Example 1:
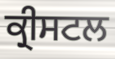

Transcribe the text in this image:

ਕ੍ਰੀਸਟਲ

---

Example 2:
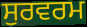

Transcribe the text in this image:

ਸੁਰਵਰਮ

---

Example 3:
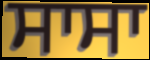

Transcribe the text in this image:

ਸਾਸਾ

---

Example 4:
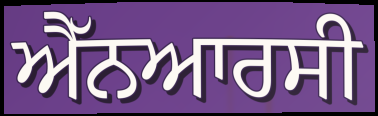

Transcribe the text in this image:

ਐੱਨਆਰਸੀ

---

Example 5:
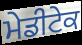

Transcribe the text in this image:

ਮੇਡੀਟੇਕ